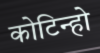
कोटिन्हो